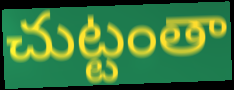
చుట్టంతా